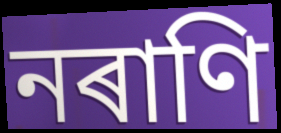
নৰাণি